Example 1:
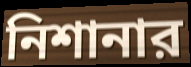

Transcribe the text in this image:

নিশানার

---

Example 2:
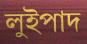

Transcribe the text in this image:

লুইপাদ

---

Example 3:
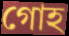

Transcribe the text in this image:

গোহ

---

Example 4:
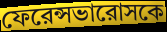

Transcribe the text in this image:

ফেরেন্সভারোসকে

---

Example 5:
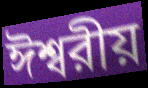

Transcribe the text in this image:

ঈশ্বরীয়